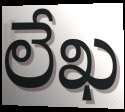
లేఖ